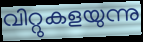
വിറ്റുകളയുന്നു